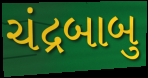
ચંદ્રબાબુ